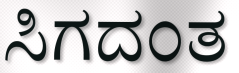
ಸಿಗದಂತ